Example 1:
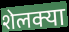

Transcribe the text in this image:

शेलक्या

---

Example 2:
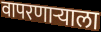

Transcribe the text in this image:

वापरणार्‍याला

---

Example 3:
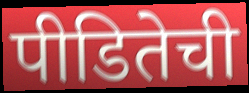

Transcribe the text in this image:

पीडितेची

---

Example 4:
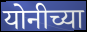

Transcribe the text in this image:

योनीच्या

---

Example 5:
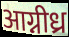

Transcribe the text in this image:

आग्नीध्र